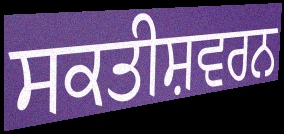
ਸਕਤੀਸ਼ਵਰਨ